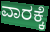
ವಾರಕ್ಕೆ